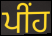
ਪੀਂਹ